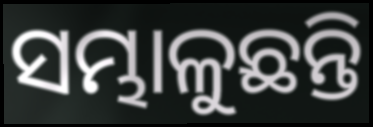
ସମ୍ଭାଳୁଛନ୍ତି